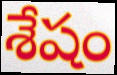
శేషం